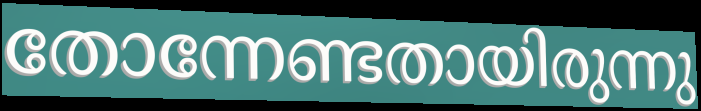
തോന്നേണ്ടതായിരുന്നു